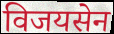
विजयसेन